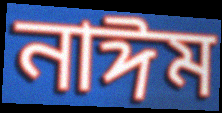
নাঈম